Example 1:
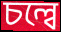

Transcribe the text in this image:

চল্বে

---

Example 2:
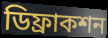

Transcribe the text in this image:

ডিফ্রাকশন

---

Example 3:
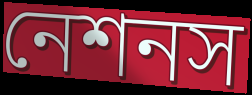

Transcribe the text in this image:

নেশনস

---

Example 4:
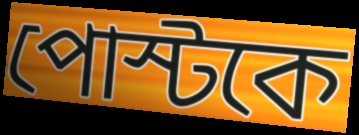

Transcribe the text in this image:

পোস্টকে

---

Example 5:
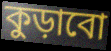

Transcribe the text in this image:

কুড়াবো